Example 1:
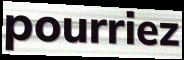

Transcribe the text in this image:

pourriez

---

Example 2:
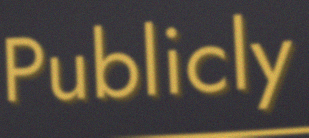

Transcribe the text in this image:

Publicly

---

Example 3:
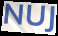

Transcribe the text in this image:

NUJ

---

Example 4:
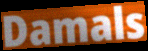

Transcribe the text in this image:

Damals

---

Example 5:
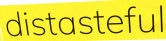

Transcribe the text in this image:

distasteful